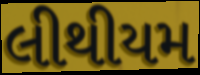
લીથીયમ